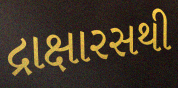
દ્રાક્ષારસથી